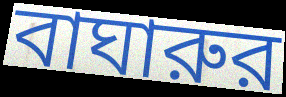
বাঘারুর